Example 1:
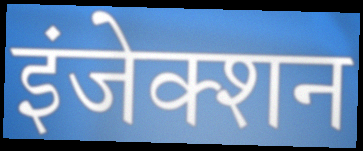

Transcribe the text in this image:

इंजेक्शन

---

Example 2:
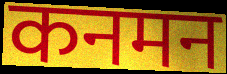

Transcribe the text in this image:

कनमन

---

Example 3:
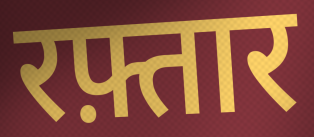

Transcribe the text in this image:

रफ़्तार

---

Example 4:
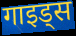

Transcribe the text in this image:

गाइड्स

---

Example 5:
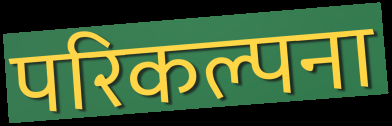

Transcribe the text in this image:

परिकल्पना